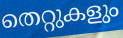
തെറ്റുകളും